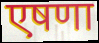
एषणा